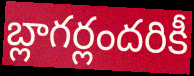
బ్లాగర్లందరికీ